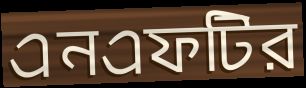
এনএফটির